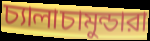
চ্যালাচামুন্ডারা